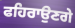
ਫਹਿਰਾਉਣਗੇ